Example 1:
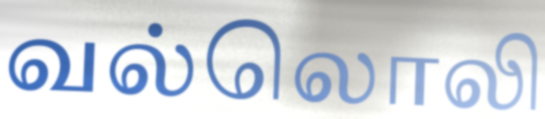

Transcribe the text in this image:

வல்லொலி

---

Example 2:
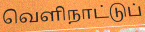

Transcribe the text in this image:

வெளிநாட்டுப்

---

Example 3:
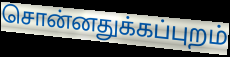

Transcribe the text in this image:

சொன்னதுக்கப்புறம்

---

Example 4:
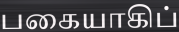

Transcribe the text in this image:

பகையாகிப்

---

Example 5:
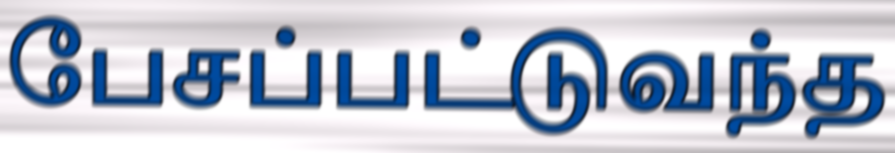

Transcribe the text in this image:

பேசப்பட்டுவந்த